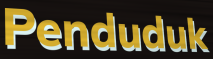
Penduduk